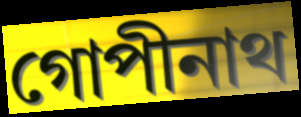
গোপীনাথ